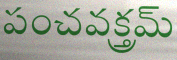
పంచవక్త్రమ్